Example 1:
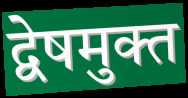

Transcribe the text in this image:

द्वेषमुक्त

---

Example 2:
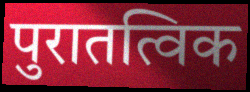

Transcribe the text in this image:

पुरातत्विक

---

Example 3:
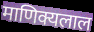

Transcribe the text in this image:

माणिक्यलाल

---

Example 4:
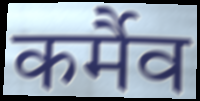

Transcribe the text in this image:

कर्मैव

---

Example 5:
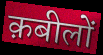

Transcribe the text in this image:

क़बीलों